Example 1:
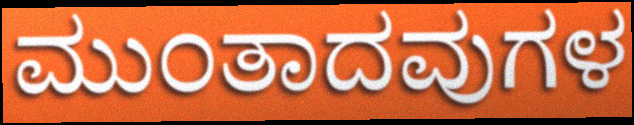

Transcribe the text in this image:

ಮುಂತಾದವುಗಳ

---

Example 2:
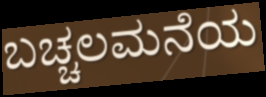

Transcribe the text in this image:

ಬಚ್ಚಲಮನೆಯ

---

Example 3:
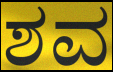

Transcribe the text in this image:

ಶವ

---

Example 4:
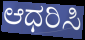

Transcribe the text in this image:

ಆಧರಿಸಿ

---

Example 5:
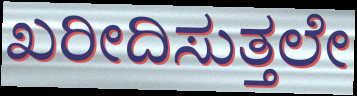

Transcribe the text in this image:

ಖರೀದಿಸುತ್ತಲೇ